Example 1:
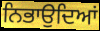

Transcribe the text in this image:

ਨਿਭਾਉਦਿਆਂ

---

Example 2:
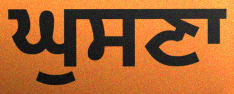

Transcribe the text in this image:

ਘੁਸਣਾ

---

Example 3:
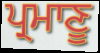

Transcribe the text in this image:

ਪ੍ਰਮਾਣੂ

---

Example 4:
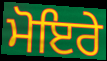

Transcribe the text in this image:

ਮੋਇਰੇ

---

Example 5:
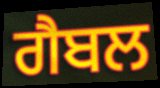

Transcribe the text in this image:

ਗੈਬਲ